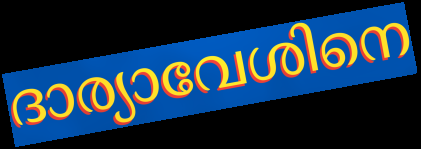
ദാര്യാവേശിനെ